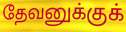
தேவனுக்குக்